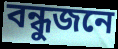
বন্ধুজনে